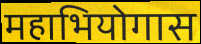
महाभियोगास